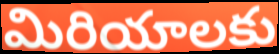
మిరియాలకు